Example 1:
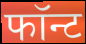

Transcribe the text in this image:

फॉन्ट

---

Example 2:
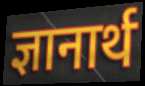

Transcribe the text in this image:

ज्ञानार्थ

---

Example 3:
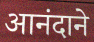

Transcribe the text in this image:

आनंदाने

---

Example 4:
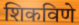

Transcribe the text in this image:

शिकविणे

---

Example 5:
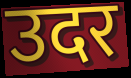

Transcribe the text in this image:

उदर